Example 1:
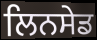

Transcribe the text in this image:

ਲਿਨਸੇਡ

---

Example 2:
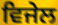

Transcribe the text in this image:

ਵਿਜੇਲ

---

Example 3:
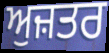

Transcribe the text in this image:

ਅੁਜ਼ਤਰ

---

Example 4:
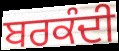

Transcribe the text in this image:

ਬਰਕੰਦੀ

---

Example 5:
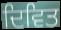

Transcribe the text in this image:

ਦਿਵਿਤ